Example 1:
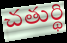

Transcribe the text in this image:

చతుర్థి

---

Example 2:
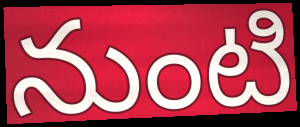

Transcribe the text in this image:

నుంటి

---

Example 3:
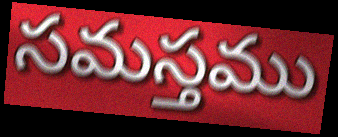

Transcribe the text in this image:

సమస్తము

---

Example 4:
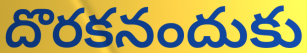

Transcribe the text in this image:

దొరకనందుకు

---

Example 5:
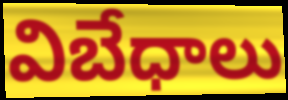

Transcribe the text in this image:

విబేధాలు